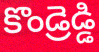
కొండ్రెడ్డి